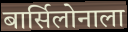
बार्सिलोनाला